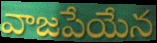
వాజపేయేన